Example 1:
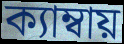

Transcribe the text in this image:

ক্যাম্বায়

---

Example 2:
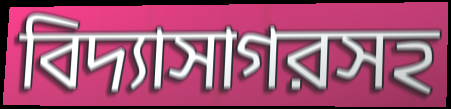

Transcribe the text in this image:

বিদ্যাসাগরসহ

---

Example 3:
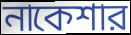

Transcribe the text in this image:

নাকেশার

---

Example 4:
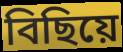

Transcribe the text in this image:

বিছিয়ে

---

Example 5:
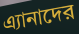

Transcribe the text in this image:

এ্যানাদের